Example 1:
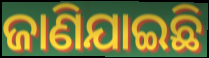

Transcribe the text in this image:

ଜାଣିଯାଇଛି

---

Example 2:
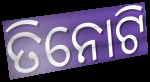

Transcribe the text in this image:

ତିନୋଟି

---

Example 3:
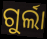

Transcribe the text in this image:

ଗୁର୍ଲା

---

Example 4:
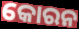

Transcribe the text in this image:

କୋରନ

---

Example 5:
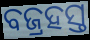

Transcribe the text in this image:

ବଜ୍ରହସ୍ତ